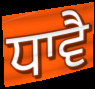
ਧਾਵੈ